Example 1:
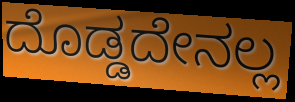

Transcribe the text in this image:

ದೊಡ್ಡದೇನಲ್ಲ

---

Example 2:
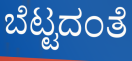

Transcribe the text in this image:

ಬೆಟ್ಟದಂತೆ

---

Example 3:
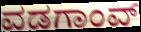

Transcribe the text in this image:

ವಡಗಾಂವ್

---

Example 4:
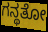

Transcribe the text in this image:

ಗನ್ಥತೋ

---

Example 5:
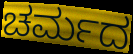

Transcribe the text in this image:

ಚರ್ಮದ